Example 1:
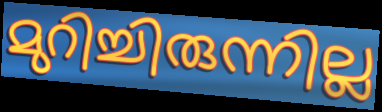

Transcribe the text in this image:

മുറിച്ചിരുന്നില്ല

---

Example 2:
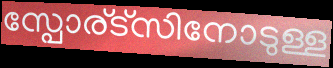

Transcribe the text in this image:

സ്പോര്ട്സിനോടുള്ള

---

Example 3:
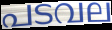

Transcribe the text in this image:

പടവല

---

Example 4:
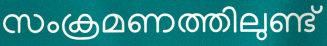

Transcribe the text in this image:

സംക്രമണത്തിലുണ്ട്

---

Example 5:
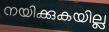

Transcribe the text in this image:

നയിക്കുകയില്ല